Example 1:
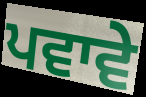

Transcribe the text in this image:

ਪਵਾਵੇ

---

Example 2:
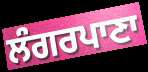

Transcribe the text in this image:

ਲੰਗਰਪਾਣਾ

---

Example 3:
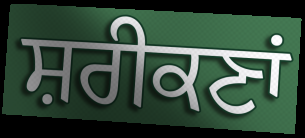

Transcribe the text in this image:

ਸ਼ਰੀਕਣਾਂ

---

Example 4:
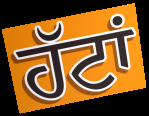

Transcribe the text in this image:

ਹੱਟਾਂ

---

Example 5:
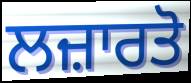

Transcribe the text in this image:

ਲਜ਼ਾਰਤੋ